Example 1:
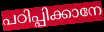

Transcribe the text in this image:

പഠിപ്പിക്കാനേ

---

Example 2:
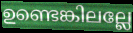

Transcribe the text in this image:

ഉണ്ടെങ്കിലല്ലേ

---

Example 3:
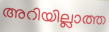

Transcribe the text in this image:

അറിയില്ലാത്ത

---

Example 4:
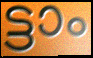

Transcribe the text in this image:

ട്ടാം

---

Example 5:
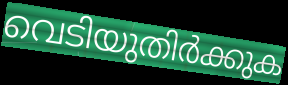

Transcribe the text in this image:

വെടിയുതിർക്കുക